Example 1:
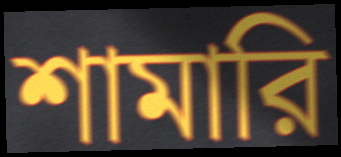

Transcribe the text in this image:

শামারি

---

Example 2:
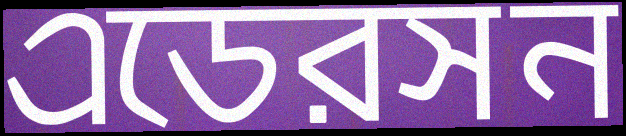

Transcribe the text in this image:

এডেরসন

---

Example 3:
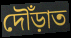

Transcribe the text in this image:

দৌঁড়াত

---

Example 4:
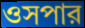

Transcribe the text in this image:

ওসপার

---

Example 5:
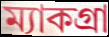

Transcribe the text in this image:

ম্যাকগ্রা